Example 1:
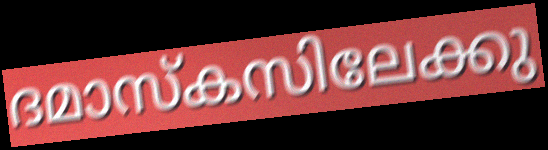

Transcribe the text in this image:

ദമാസ്കസിലേക്കു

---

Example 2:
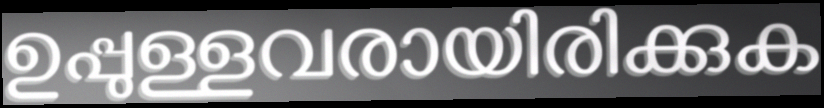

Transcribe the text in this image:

ഉപ്പുള്ളവരായിരിക്കുക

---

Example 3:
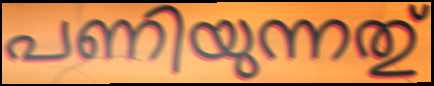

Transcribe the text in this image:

പണിയുന്നതു്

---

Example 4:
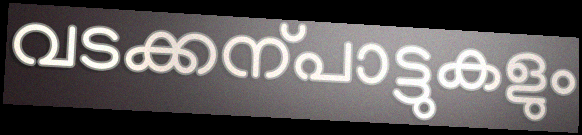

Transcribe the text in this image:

വടക്കന്പാട്ടുകളും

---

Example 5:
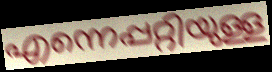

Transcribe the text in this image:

എന്നെപ്പറ്റിയുള്ള